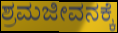
ಶ್ರಮಜೀವನಕ್ಕೆ